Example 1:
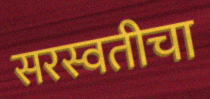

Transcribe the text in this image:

सरस्वतीचा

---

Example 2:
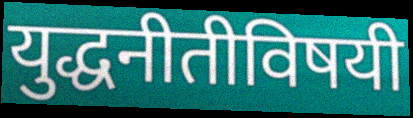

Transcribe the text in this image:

युद्धनीतीविषयी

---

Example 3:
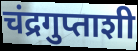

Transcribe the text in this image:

चंद्रगुप्ताशी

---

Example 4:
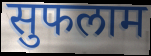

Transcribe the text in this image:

सुफलाम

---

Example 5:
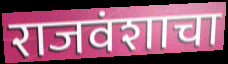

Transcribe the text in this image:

राजवंशाचा